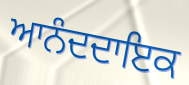
ਆਨੰਦਦਾਇਕ